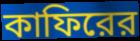
কাফিরের